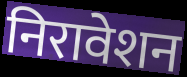
निरावेशन